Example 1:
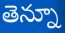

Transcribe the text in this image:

తెన్నూ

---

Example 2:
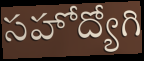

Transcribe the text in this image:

సహోద్యోగి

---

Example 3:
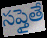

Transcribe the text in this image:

సప్తైతే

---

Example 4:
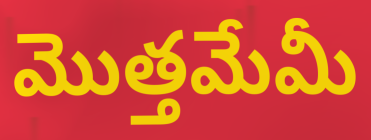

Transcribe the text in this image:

మొత్తమేమీ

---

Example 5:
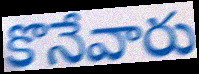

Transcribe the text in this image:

కొనేవారు